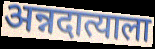
अन्नदात्याला